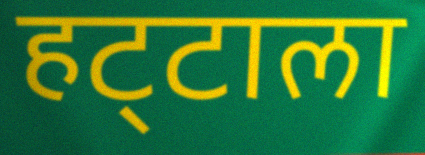
हट्‌टाला